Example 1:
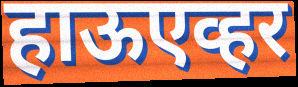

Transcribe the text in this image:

हाऊएव्हर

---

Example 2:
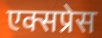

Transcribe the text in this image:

एक्सप्रेस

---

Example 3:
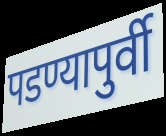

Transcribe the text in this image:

पडण्यापुर्वी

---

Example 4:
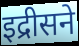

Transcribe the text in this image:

इद्रीसने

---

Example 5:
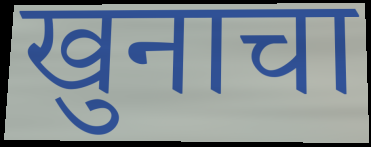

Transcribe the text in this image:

खुनाचा